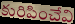
కురిపించేవి